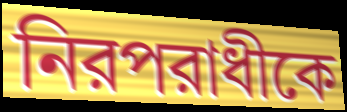
নিরপরাধীকে